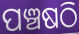
ପଞ୍ଚଷଠି